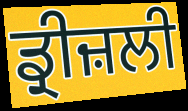
ਡ੍ਰੀਜ਼ਲੀ